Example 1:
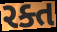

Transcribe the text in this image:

રક્ત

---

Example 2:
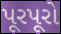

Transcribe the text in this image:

પૂરપૂરો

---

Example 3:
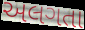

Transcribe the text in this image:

અલગતા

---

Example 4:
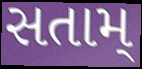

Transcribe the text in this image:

સતામ્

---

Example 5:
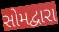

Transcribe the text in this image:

સોમદ્વારા